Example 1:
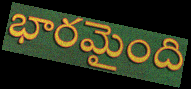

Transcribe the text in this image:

భారమైంది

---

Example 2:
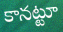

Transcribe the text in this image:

కానట్టూ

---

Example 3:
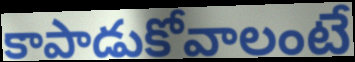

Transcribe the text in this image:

కాపాడుకోవాలంటే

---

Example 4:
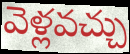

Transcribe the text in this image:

వెళ్లవచ్చు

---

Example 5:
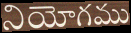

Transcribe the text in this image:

నియోగము